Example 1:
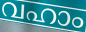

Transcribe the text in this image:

വഹാം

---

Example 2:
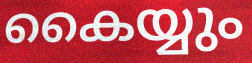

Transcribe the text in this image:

കൈയ്യും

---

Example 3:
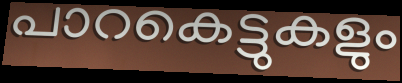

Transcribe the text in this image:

പാറകെട്ടുകളും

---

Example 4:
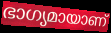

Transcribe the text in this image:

ഭാഗ്യമായാണ്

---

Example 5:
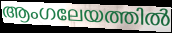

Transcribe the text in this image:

ആംഗലേയത്തിൽ